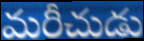
మరీచుడు